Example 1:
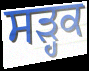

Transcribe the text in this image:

ਸੜ੍ਹਕ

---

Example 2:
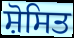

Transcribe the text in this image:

ਸ਼ੋਸਿਤ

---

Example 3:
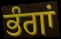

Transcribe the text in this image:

ਭੰਗਾਂ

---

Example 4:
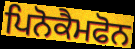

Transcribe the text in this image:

ਪਿਨੋਕੈਮਫੋਨ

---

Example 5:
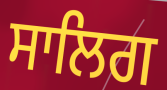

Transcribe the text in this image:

ਸਾਲਿਗ